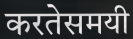
करतेसमयी